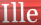
Ille